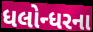
ધલોન્ધરના